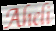
Aheli